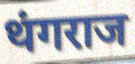
थंगराज